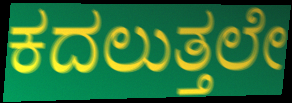
ಕದಲುತ್ತಲೇ